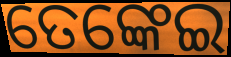
ତେଙ୍କେଇ